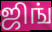
ஜிங்